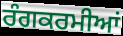
ਰੰਗਕਰਮੀਆਂ